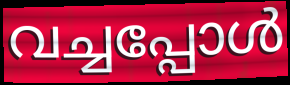
വച്ചപ്പോൾ